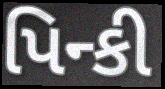
પિન્કી